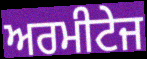
ਅਰਮੀਟੇਜ